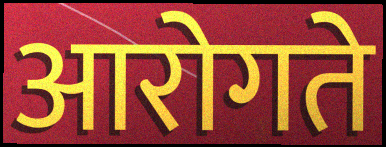
आरोगते